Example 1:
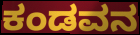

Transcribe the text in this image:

ಕಂಡವನ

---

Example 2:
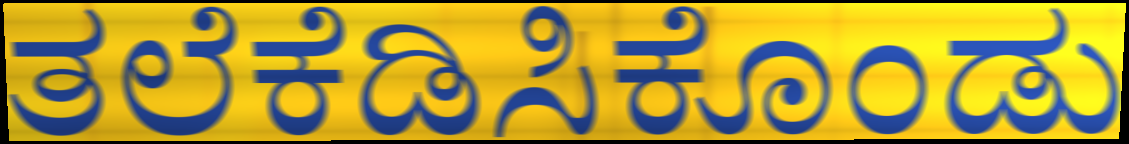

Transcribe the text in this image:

ತಲೆಕೆಡಿಸಿಕೊಂಡು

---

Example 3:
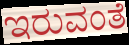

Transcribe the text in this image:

ಇರುವಂತೆ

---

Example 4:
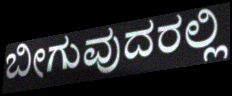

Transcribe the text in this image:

ಬೀಗುವುದರಲ್ಲಿ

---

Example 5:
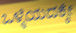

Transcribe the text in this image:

ಒಳ್ಳೆಯದಕ್ಕೇ